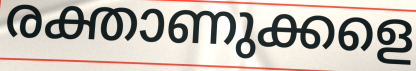
രക്താണുക്കളെ